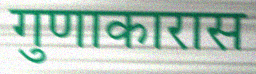
गुणाकारास